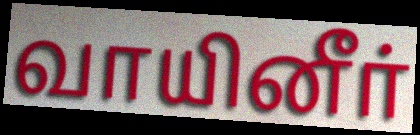
வாயினீர்